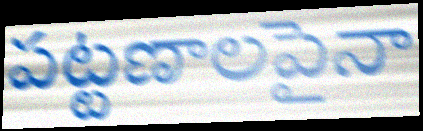
పట్టణాలపైనా